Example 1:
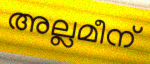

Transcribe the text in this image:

അല്ലമീന്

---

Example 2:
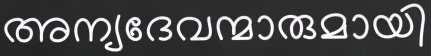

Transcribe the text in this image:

അന്യദേവന്മാരുമായി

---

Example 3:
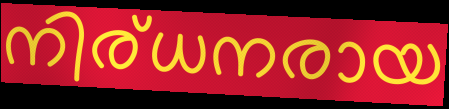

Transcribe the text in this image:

നിര്ധനരായ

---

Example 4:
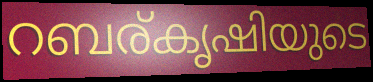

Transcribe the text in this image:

റബര്കൃഷിയുടെ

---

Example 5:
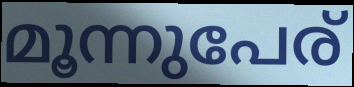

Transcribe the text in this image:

മൂന്നുപേര്